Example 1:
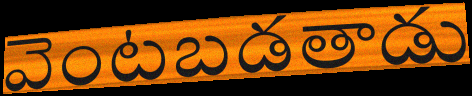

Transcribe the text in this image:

వెంటబడతాడు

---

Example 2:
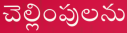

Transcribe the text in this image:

చెల్లింపులను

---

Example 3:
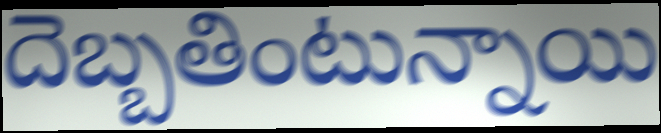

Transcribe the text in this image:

దెబ్బతింటున్నాయి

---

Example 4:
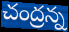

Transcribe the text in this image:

చంద్రన్న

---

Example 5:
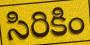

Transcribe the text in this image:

సిరికిం